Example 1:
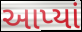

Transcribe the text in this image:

આપ્યાં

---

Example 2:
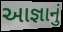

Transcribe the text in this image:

આજ્ઞાનું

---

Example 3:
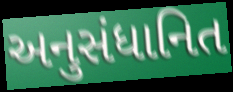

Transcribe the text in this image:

અનુસંધાનિત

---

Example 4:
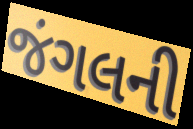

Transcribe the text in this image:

જંગલની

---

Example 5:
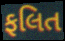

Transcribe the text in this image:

ફલિત